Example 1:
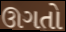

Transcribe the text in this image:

ઊગતો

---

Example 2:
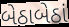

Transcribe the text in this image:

બેઠાબેઠાં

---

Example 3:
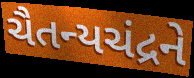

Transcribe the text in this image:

ચૈતન્યચંદ્રને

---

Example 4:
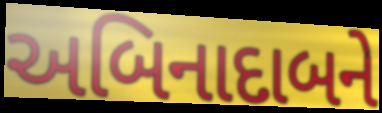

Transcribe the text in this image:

અબિનાદાબને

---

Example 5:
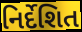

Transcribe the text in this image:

નિર્દેશિત